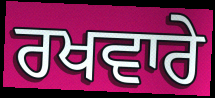
ਰਖਵਾਰੇ